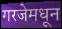
गरजेमधून